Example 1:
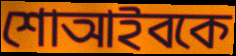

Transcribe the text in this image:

শোআইবকে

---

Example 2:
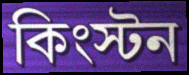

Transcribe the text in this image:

কিংস্টন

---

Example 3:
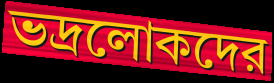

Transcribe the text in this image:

ভদ্রলোকদের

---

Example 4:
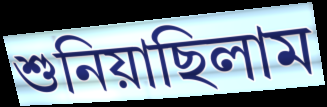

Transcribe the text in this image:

শুনিয়াছিলাম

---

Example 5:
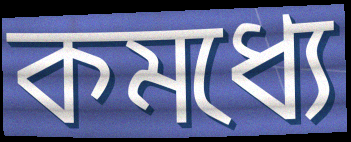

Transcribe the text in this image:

কমধ্যে